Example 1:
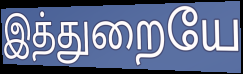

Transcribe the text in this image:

இத்துறையே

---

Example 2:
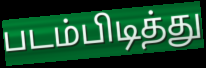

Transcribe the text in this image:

படம்பிடித்து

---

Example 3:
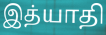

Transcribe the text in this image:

இத்யாதி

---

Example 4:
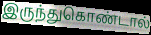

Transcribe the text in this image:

இருந்துகொண்டால்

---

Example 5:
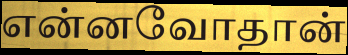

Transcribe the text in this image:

என்னவோதான்